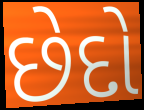
છેદો